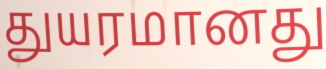
துயரமானது